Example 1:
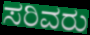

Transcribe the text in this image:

ಸರಿವರು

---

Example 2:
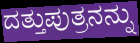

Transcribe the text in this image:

ದತ್ತುಪುತ್ರನನ್ನು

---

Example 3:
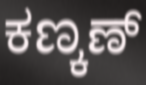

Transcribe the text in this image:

ಕಣ್ಕಣ್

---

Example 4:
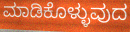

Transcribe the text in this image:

ಮಾಡಿಕೊಳ್ಳುವುದ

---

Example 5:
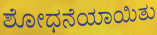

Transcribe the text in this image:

ಶೋಧನೆಯಾಯಿತು